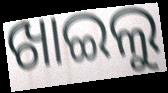
ଖାଇଲୁ